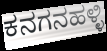
ಕನಗನಹಳ್ಳಿ